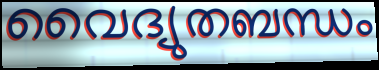
വൈദ്യുതബന്ധം